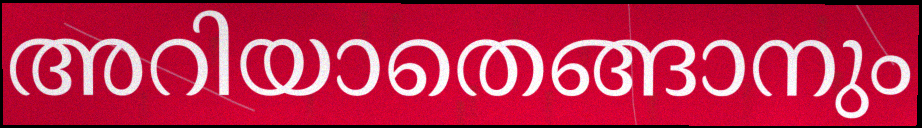
അറിയാതെങ്ങാനും